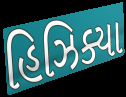
હિઝિક્યા